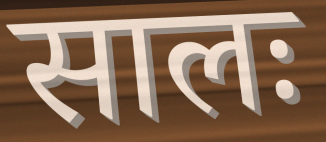
सालः